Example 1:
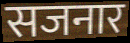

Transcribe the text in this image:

सजनार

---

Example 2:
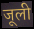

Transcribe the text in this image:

जूली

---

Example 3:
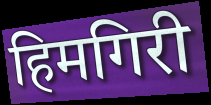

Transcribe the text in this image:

हिमगिरी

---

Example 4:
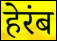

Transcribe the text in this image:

हेरंब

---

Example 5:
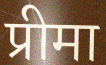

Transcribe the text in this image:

प्रीमा